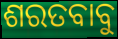
ଶରତବାବୁ